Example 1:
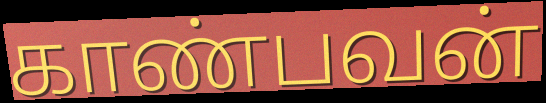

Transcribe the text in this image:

காண்பவன்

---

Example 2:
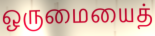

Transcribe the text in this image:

ஒருமையைத்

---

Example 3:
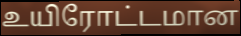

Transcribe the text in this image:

உயிரோட்டமான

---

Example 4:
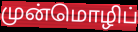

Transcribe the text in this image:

முன்மொழிப்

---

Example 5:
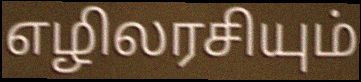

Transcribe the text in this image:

எழிலரசியும்